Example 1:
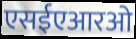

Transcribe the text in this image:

एसईएआरओ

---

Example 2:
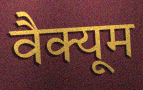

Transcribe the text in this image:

वैक्‍यूम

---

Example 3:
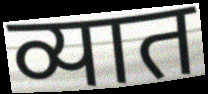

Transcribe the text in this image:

व्यात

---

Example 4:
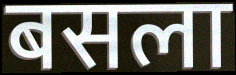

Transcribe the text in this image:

बसला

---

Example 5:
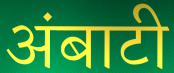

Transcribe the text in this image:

अंबाटी